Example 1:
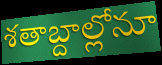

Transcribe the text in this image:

శతాబ్దాల్లోనూ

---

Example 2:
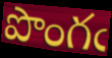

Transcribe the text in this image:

పొంగఁ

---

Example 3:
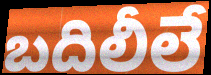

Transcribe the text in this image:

బదిలీలే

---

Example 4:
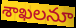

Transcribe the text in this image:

శాఖలనూ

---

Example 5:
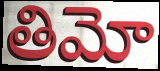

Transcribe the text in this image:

తిమో